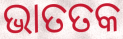
ଭାତତକ